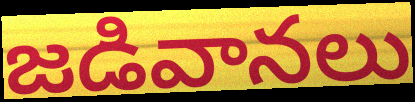
జడివానలు